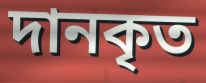
দানকৃত